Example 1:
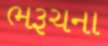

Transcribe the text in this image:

ભરૂચના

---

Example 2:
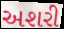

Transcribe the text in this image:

અશરી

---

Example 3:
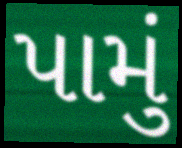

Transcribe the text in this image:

પામું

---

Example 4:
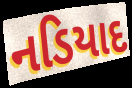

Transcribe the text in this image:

નડિયાદ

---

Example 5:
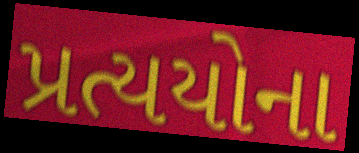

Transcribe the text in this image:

પ્રત્યયોના